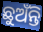
ଛୁଅଁନ୍ତି